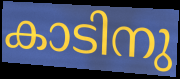
കാടിനു